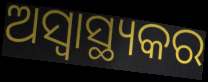
ଅସ୍ବାସ୍ଥ୍ୟକର